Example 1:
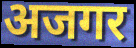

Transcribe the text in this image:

अजगर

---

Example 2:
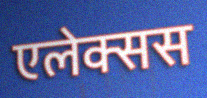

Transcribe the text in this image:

एलेक्सस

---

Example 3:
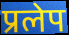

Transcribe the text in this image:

प्रलेप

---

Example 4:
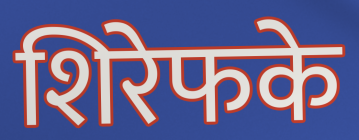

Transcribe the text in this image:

शिरेफके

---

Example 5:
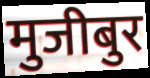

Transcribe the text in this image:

मुजीबुर